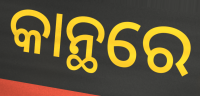
କାନ୍ଥରେ